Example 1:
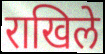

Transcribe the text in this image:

राखिले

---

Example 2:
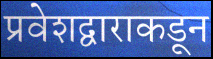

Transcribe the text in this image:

प्रवेशद्वाराकडून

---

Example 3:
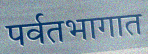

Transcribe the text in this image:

पर्वतभागात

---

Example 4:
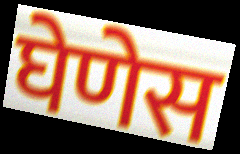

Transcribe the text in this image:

घेणेस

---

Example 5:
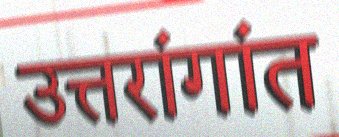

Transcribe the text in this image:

उत्तरांगांत